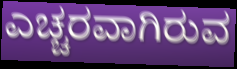
ಎಚ್ಚರವಾಗಿರುವ